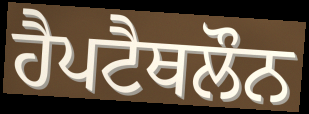
ਹੈਪਟੈਥਲੌਨ